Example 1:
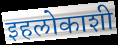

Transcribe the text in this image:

इहलोकाशी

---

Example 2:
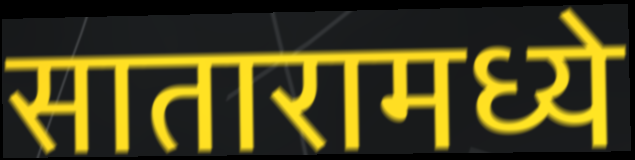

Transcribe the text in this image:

सातारामध्ये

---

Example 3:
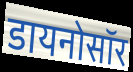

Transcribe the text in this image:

डायनोसॉर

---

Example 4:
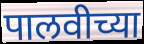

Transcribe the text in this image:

पालवीच्या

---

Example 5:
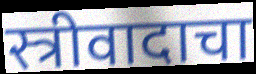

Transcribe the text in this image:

स्त्रीवादाचा